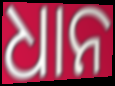
ଧାନ